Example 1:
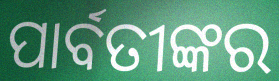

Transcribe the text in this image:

ପାର୍ବତୀଙ୍କର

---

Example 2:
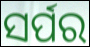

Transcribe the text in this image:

ସର୍ପର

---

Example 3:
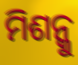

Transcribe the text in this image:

ମିଶନ୍କୁ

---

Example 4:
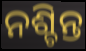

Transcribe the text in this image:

ନଶ୍ଚିନ୍ତ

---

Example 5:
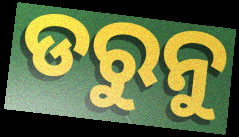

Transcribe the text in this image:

ଡରୁନୁ